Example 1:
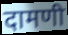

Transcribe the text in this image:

दामणी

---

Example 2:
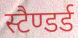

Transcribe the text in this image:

स्टैण्डर्ड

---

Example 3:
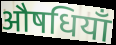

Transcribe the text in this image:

औषधियाँ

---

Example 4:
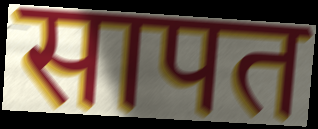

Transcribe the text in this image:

सापत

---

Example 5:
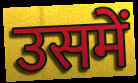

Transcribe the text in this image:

उसमें